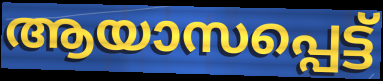
ആയാസപ്പെട്ട്